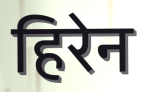
हिरेन